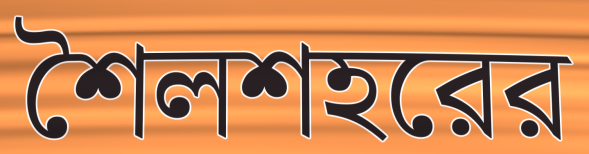
শৈলশহরের